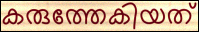
കരുത്തേകിയത്